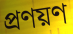
প্ৰণয়ণ